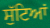
ਸੁੱਟਿਆਂ